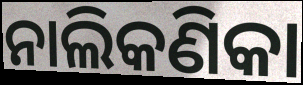
ନାଲିକଣିକା